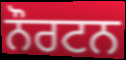
ਨੌਰਟਨ